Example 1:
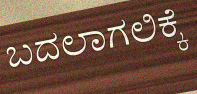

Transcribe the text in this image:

ಬದಲಾಗಲಿಕ್ಕೆ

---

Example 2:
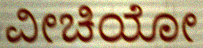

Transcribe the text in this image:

ವೀಚಿಯೋ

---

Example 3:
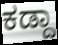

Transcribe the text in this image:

ಕಡ್ದಾ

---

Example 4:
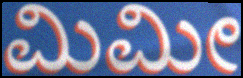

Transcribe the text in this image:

ಮಿಮೀ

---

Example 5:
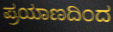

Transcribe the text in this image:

ಪ್ರಯಾಣದಿಂದ